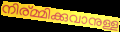
നിര്മ്മിക്കുവാനുള്ള